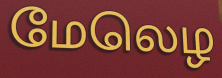
மேலெழ